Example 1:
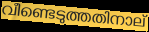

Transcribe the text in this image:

വീണ്ടെടുത്തതിനാല്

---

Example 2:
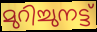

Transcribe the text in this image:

മുറിച്ചുനട്ട്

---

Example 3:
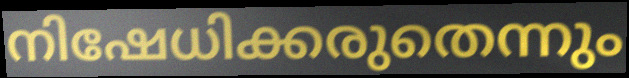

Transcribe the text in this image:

നിഷേധിക്കരുതെന്നും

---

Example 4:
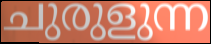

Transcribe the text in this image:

ചുരുളുന്ന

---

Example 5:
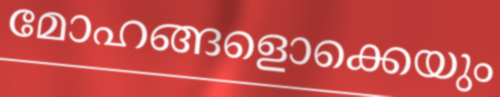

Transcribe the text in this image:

മോഹങ്ങളൊക്കെയും